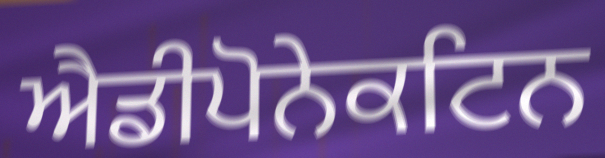
ਐਡੀਪੋਨੇਕਟਿਨ